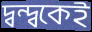
দ্বন্দ্বকেই